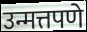
उन्मत्तपणे